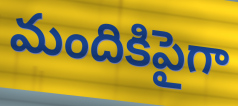
మందికిపైగా